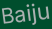
Baiju